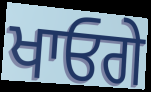
ਖਾਓਗੇ